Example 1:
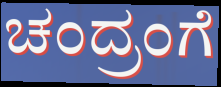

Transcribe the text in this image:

ಚಂದ್ರಂಗೆ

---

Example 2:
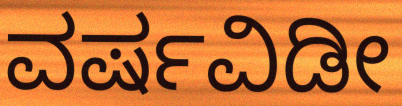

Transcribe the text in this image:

ವರ್ಷವಿಡೀ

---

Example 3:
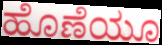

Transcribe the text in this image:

ಹೊಣೆಯೂ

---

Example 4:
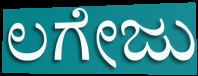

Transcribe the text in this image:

ಲಗೇಜು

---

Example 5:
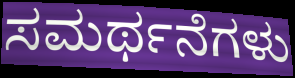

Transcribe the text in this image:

ಸಮರ್ಥನೆಗಳು